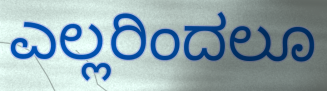
ಎಲ್ಲರಿಂದಲೂ